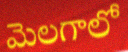
మెలగాలో